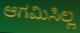
ಆಗಮಿಸಿಲ್ಲ